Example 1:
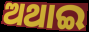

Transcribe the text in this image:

ଅଥାଇ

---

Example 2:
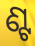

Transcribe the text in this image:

ଣ୍ଟ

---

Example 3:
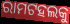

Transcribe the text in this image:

ରାମଟହଲକୁ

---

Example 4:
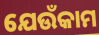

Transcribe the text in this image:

ଯେଉଁକାମ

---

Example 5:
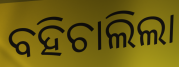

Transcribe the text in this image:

ବହିଚାଲିଲା